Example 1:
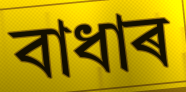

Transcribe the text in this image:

বাধাৰ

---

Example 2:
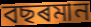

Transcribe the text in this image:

বছৰমান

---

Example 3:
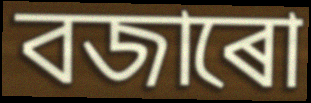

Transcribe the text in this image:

বজাৰো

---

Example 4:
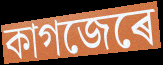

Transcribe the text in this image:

কাগজেৰে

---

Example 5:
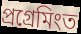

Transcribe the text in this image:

প্ৰগ্ৰেমিংত